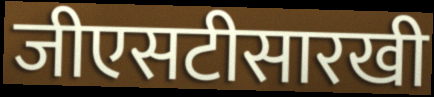
जीएसटीसारखी